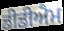
ਡੀਡੀਐਮ